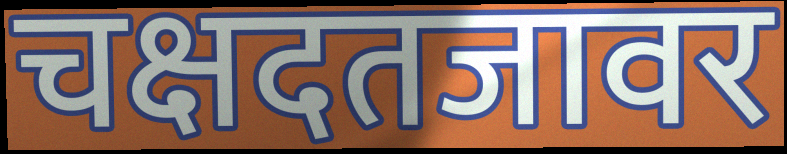
चक्षदतजावर